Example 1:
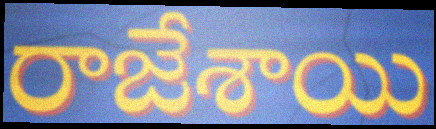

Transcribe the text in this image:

రాజేశాయి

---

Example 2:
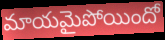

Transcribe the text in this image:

మాయమైపోయిందో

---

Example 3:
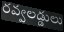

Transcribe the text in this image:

రవ్వలడ్డులు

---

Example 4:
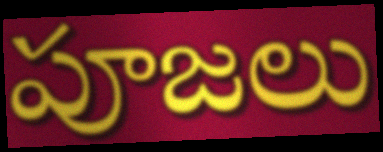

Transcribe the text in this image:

పూజలు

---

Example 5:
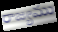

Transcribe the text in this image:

రాజ్యము